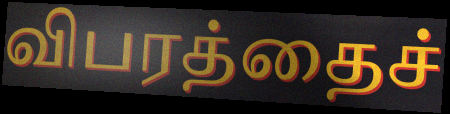
விபரத்தைச்